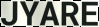
JYARE